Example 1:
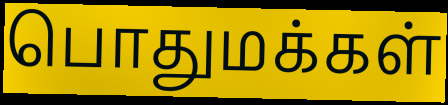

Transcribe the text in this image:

பொதுமக்கள்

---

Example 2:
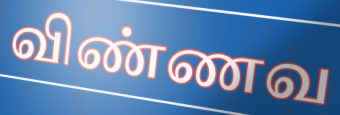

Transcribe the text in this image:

விண்ணவ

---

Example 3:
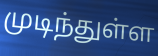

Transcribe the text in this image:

முடிந்துள்ள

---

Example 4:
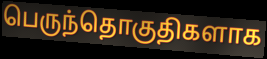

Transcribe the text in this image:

பெருந்தொகுதிகளாக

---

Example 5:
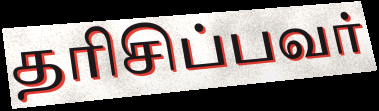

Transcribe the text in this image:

தரிசிப்பவர்